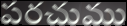
పరచుము